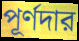
পূর্ণদার